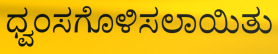
ಧ್ವಂಸಗೊಳಿಸಲಾಯಿತು